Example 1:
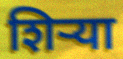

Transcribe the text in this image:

शिर्‍या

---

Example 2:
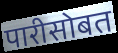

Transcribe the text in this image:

पारीसोबत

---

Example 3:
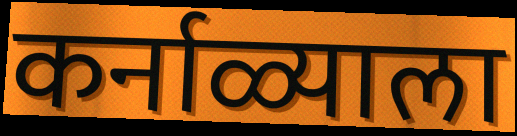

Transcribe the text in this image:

कर्नाळ्याला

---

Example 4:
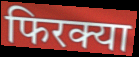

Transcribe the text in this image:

फिरक्या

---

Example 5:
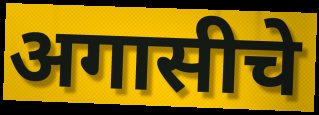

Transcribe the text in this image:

अगासीचे